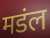
मडंल